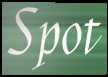
Spot